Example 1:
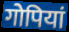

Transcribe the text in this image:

गोपियां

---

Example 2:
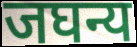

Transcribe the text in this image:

जघन्य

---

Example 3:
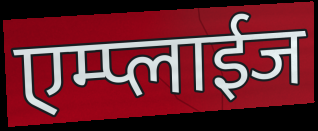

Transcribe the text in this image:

एम्प्लाईज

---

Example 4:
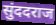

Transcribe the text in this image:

सुंददराज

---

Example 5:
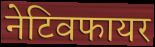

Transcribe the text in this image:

नेटिवफायर